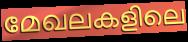
മേഖലകളിലെ